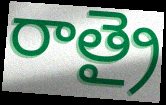
రాత్రై